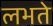
लभते